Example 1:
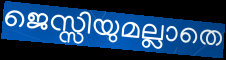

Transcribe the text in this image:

ജെസ്സിയുമല്ലാതെ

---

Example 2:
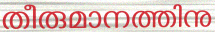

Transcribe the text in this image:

തീരുമാനത്തിനു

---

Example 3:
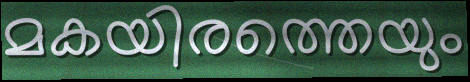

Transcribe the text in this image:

മകയിരത്തെയും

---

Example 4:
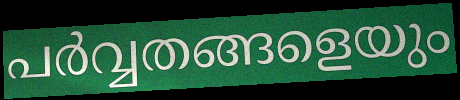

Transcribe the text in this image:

പർവ്വതങ്ങളെയും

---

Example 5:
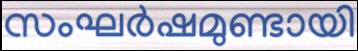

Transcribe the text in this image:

സംഘർഷമുണ്ടായി